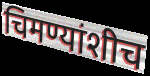
चिमण्यांशीच